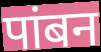
पांबन